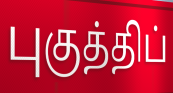
புகுத்திப்